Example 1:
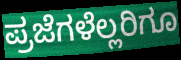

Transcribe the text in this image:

ಪ್ರಜೆಗಳೆಲ್ಲರಿಗೂ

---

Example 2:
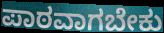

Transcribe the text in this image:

ಪಾಠವಾಗಬೇಕು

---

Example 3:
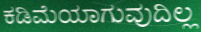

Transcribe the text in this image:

ಕಡಿಮೆಯಾಗುವುದಿಲ್ಲ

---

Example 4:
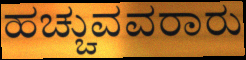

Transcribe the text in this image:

ಹಚ್ಚುವವರಾರು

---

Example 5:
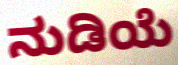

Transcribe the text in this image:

ನುಡಿಯೆ